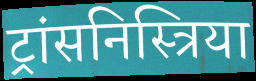
ट्रांसनिस्त्रिया